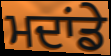
ਮਦਾਂਡੇ